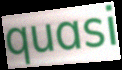
quasi